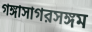
গঙ্গাসাগরসঙ্গম